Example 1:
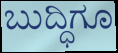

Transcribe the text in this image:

ಬುದ್ಧಿಗೂ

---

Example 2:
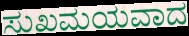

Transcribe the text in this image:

ಸುಖಮಯವಾದ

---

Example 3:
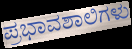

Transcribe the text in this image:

ಪ್ರಭಾವಶಾಲಿಗಳು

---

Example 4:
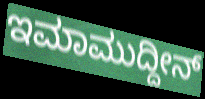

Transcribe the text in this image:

ಇಮಾಮುದ್ದೀನ್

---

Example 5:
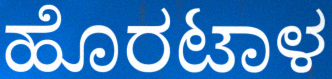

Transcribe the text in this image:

ಹೊರಟಾಳ